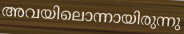
അവയിലൊന്നായിരുന്നു